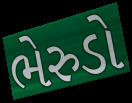
ભેરુડો